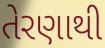
તેરણાથી